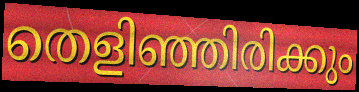
തെളിഞ്ഞിരിക്കും